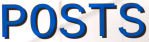
POSTS